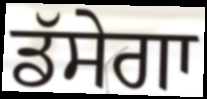
ਡੱਸੇਗਾ